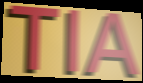
TIA